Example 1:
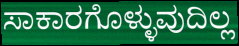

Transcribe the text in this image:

ಸಾಕಾರಗೊಳ್ಳುವುದಿಲ್ಲ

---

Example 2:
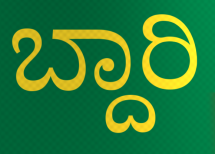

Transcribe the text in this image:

ಬ್ದಾರಿ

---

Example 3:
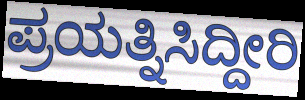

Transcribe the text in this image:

ಪ್ರಯತ್ನಿಸಿದ್ದೀರಿ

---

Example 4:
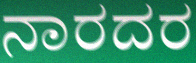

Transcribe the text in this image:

ನಾರದರ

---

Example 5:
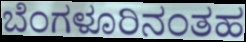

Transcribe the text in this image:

ಬೆಂಗಳೂರಿನಂತಹ